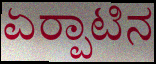
ಏರ‍್ಪಾಟಿನ